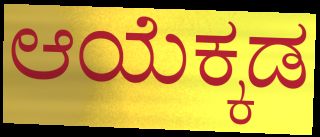
ಆಯೆಕ್ಕಡ